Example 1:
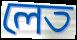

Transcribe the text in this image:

লেত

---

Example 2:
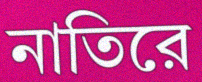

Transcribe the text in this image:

নাতিরে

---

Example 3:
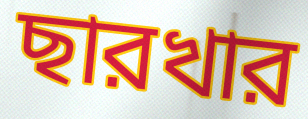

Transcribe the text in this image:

ছারখার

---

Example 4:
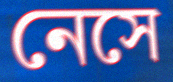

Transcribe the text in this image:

নেসে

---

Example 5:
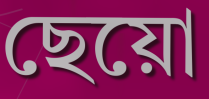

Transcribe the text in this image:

ছেয়ো